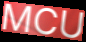
MCU